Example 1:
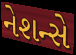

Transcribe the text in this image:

નેશન્સે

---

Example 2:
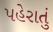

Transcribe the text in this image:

પહેરાતું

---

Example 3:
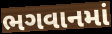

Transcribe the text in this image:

ભગવાનમાં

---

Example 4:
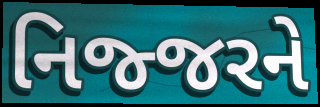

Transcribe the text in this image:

નિજ્જરને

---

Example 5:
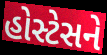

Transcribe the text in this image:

હોસ્ટેસને